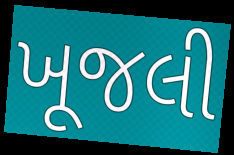
ખૂજલી